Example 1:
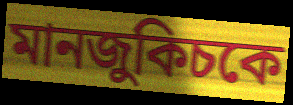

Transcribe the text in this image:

মানজুকিচকে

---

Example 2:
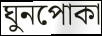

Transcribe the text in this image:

ঘুনপোকা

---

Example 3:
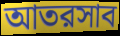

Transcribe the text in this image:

আতরসাব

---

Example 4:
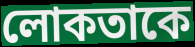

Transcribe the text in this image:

লোকতাকে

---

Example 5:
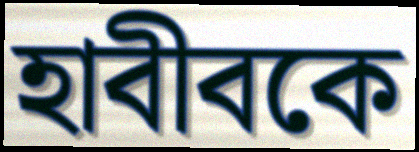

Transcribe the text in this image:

হাবীবকে